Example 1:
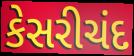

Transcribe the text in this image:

કેસરીચંદ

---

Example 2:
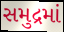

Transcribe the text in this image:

સમુદ્રમાં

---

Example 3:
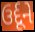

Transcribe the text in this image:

ઉર્દૂને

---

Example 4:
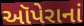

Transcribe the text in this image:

ઑપેરાનાં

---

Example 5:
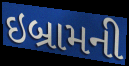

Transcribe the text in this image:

ઇબ્રામની